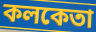
কলকেতা